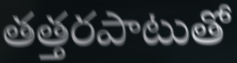
తత్తరపాటుతో